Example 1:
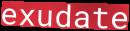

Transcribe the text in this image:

exudate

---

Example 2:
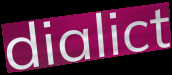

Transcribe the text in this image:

dialict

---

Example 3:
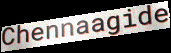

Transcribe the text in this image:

Chennaagide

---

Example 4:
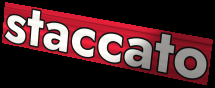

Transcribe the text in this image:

staccato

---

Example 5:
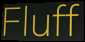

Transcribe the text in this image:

Fluff